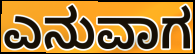
ಎನುವಾಗ